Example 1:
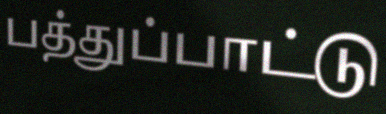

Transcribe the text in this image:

பத்துப்பாட்டு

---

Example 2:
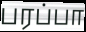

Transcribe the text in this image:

பரப்பா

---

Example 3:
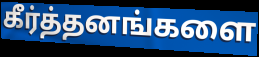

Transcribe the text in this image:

கீர்த்தனங்களை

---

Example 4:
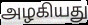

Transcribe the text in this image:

அழகியது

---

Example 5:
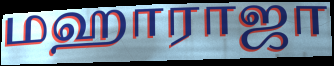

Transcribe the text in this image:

மஹாராஜா